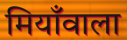
मियाँवाला